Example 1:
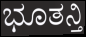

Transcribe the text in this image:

ಭೂತನ್ತಿ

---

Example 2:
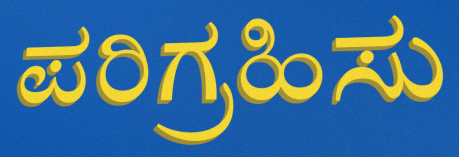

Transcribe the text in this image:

ಪರಿಗ್ರಹಿಸು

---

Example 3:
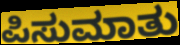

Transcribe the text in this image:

ಪಿಸುಮಾತು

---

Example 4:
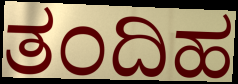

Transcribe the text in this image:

ತಂದಿಹ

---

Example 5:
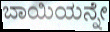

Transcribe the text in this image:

ಬಾಯಿಯನ್ನೇ